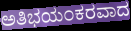
ಅತಿಭಯಂಕರವಾದ